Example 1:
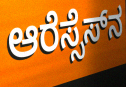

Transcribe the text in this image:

ಆರೆಸ್ಸೆಸ್‌ನ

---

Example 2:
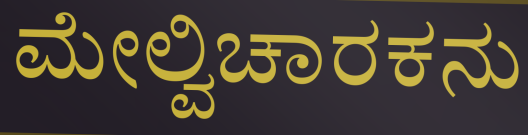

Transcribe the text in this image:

ಮೇಲ್ವಿಚಾರಕನು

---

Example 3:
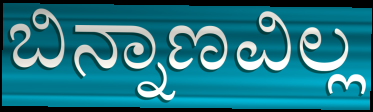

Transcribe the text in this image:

ಬಿನ್ನಾಣವಿಲ್ಲ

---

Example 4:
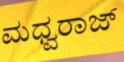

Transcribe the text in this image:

ಮಧ್ವರಾಜ್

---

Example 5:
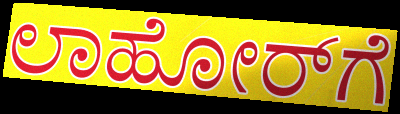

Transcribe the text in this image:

ಲಾಹೋರ್‌ಗೆ